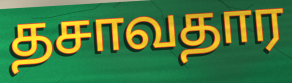
தசாவதார